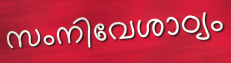
സംനിവേശാഠ്യം